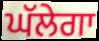
ਘੱਲੇਗਾ